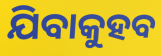
ଯିବାକୁହବ